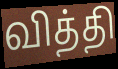
வித்தி